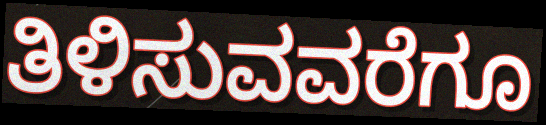
ತಿಳಿಸುವವರೆಗೂ